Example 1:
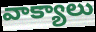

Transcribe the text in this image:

వాక్యాలు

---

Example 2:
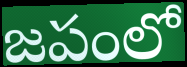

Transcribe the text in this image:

జపంలో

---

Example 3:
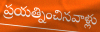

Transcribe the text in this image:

ప్రయత్నించినవాళ్లు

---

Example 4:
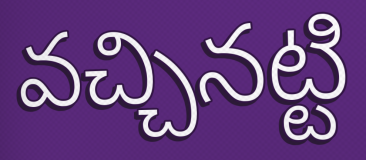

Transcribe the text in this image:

వచ్చినట్టి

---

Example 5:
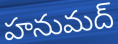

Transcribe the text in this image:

హనుమద్